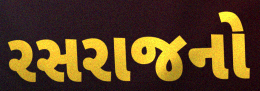
રસરાજનો